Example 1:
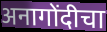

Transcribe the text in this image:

अनागोंदीचा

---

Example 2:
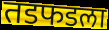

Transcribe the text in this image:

तडफडला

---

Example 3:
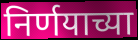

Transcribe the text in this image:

निर्णयाच्या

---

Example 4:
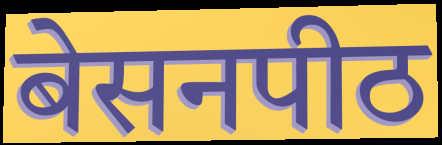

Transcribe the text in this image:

बेसनपीठ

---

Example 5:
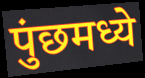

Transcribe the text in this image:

पुंछमध्ये